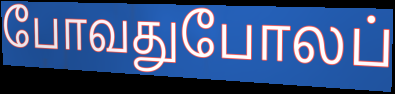
போவதுபோலப்